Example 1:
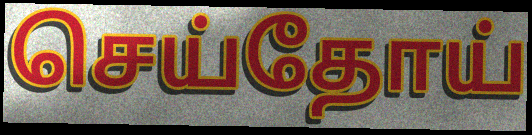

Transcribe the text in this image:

செய்தோய்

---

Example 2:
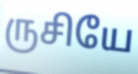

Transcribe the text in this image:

ருசியே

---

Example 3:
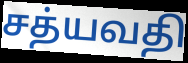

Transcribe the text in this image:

சத்யவதி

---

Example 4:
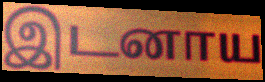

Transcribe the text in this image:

இடனாய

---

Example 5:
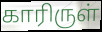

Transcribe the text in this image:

காரிருள்